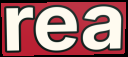
rea